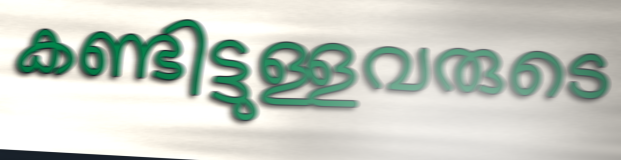
കണ്ടിട്ടുള്ളവരുടെ